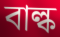
বাল্ক